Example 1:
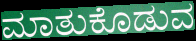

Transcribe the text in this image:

ಮಾತುಕೊಡುವ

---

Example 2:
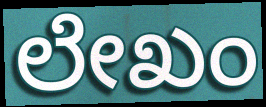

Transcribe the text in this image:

ಲೇಖಂ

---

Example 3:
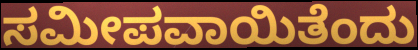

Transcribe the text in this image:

ಸಮೀಪವಾಯಿತೆಂದು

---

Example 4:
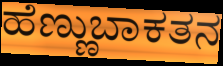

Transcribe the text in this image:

ಹೆಣ್ಣುಬಾಕತನ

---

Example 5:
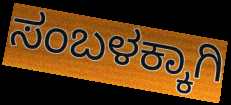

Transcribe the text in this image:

ಸಂಬಳಕ್ಕಾಗಿ